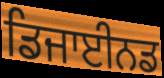
ਡਿਜਾਈਨਡ